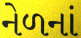
નેળનાં